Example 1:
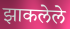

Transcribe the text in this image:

झाकलेले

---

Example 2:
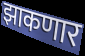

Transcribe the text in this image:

झाकणार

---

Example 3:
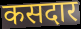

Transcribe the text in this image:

कसदार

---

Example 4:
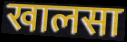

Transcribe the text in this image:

खालसा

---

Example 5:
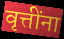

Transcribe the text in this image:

वृत्तींना